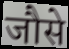
जौसे